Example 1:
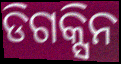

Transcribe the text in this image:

ଡିଗକ୍ସିନ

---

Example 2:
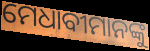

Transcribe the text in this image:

ମେଧାବୀମାନଙ୍କୁ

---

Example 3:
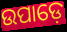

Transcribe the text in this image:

ଉପାଡ଼େ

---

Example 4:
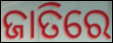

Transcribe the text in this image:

ଜାତିରେ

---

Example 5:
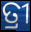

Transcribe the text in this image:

ତ୍ରୀ